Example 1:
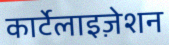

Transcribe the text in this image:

कार्टेलाइज़ेशन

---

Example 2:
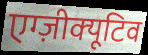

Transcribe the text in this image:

एग्ज़ीक्यूटिव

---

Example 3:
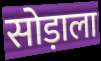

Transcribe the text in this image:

सोड़ाला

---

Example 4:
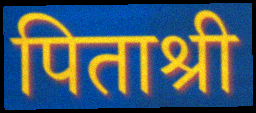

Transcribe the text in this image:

पिताश्री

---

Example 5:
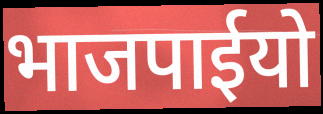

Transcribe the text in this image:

भाजपाईयो